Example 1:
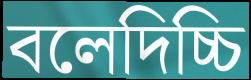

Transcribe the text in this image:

বলেদিচ্চি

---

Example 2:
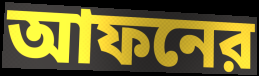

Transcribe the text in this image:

আফনের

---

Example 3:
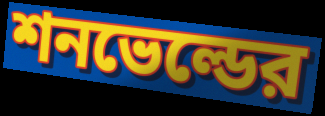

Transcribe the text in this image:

শনভেল্ডের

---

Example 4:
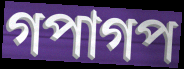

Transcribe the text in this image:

গপাগপ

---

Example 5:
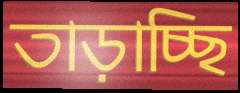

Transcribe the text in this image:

তাড়াচ্ছি